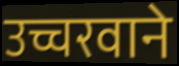
उच्चरवाने